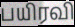
பயிரவி